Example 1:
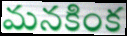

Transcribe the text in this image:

మనకింక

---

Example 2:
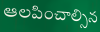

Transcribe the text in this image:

ఆలపించాల్సిన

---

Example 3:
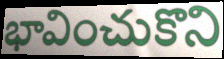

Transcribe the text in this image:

భావించుకొని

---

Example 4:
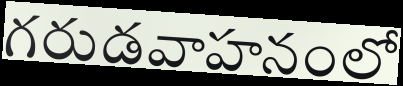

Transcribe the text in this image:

గరుడవాహనంలో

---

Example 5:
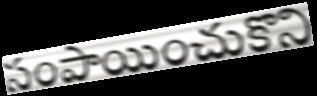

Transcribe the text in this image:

సంపాయించుకొని